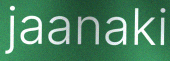
jaanaki